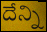
దేన్ని